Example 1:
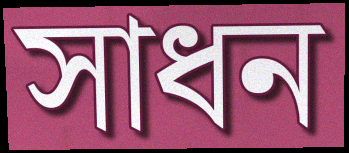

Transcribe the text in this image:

সাধন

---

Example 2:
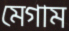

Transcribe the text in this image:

মেগাম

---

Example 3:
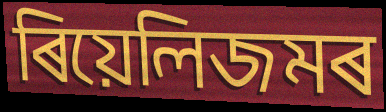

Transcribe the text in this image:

ৰিয়েলিজমৰ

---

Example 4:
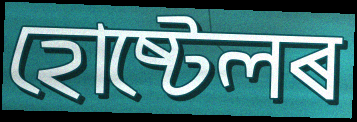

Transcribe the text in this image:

হোষ্টেলৰ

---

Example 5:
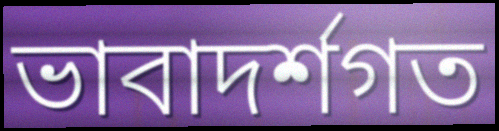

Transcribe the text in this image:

ভাবাদৰ্শগত